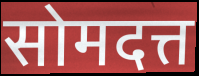
सोमदत्त